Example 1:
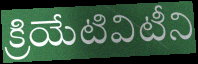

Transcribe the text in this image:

క్రియేటివిటీని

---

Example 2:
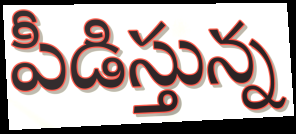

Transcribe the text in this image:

పీడిస్తున్న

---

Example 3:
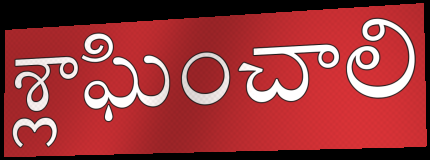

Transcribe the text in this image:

శ్లాఘించాలి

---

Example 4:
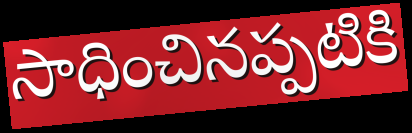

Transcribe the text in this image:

సాధించినప్పటికి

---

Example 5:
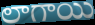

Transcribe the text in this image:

లాగాయి